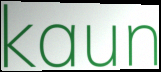
kaun